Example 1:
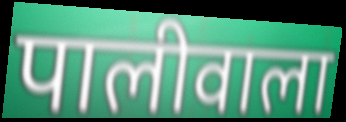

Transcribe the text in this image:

पालीवाला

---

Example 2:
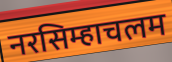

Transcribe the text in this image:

नरसिम्हाचलम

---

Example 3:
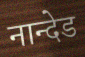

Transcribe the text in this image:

नान्देड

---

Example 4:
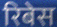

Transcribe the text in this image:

रिबेस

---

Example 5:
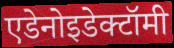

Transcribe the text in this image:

एडेनोइडेक्टॉमी